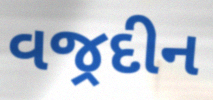
વજ્રદીન